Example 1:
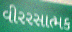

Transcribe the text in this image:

વીરરસાત્મક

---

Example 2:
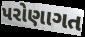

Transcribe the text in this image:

પરોણાગત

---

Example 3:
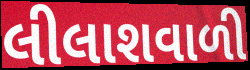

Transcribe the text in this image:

લીલાશવાળી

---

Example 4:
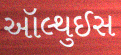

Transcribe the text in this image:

ઑલ્થુઈસ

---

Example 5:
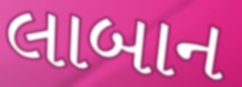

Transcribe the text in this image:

લાબાન